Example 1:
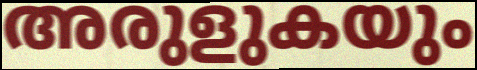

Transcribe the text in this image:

അരുളുകയും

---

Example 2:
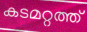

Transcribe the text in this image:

കടമറ്റത്ത്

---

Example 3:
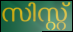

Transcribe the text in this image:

സിസ്റ്റ്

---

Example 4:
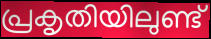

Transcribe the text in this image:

പ്രകൃതിയിലുണ്ട്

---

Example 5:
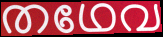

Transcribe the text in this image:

തഥേവ